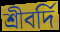
শ্রীবর্দি